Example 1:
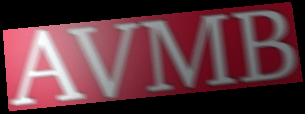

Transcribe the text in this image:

AVMB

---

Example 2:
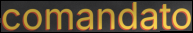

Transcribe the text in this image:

comandato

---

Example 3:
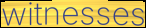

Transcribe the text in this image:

witnesses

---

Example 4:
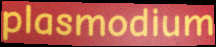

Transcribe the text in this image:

plasmodium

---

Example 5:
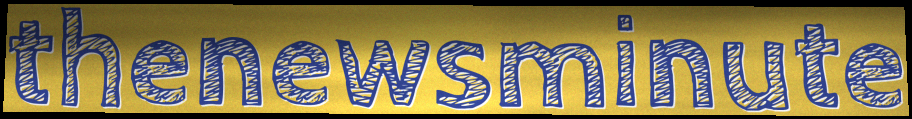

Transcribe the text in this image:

thenewsminute